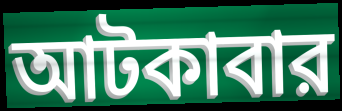
আটকাবার